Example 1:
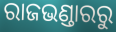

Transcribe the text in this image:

ରାଜଭଣ୍ଡାରରୁ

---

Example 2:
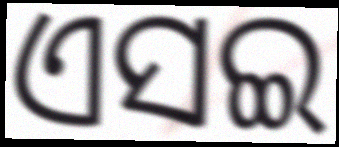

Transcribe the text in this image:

ଏସଇ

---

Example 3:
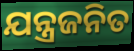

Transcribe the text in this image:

ଯନ୍ତ୍ରଜନିତ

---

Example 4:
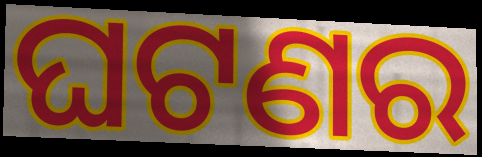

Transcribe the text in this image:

ଘଟଣର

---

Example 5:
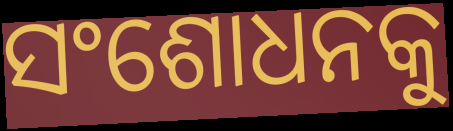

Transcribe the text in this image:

ସଂଶୋଧନକୁ